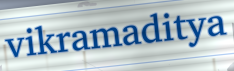
vikramaditya